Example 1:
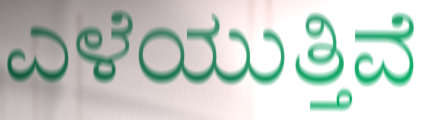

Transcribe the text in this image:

ಎಳೆಯುತ್ತಿವೆ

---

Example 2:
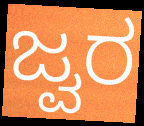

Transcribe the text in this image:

ಜ್ವರ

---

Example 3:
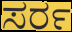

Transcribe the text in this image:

ಸರ್ರ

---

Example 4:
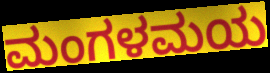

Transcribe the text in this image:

ಮಂಗಳಮಯ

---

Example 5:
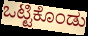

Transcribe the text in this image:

ಒಟ್ಟಿಕೊಂಡು